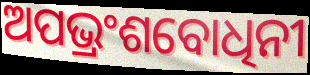
ଅପଭ୍ରଂଶବୋଧିନୀ